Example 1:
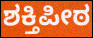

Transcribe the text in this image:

ಶಕ್ತಿಪೀಠ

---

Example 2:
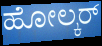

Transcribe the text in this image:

ಹೋಲ್ಕರ್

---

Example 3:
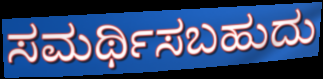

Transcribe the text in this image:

ಸಮರ್ಥಿಸಬಹುದು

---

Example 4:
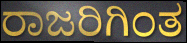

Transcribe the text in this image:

ರಾಜರಿಗಿಂತ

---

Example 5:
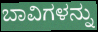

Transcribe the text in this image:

ಬಾವಿಗಳನ್ನು